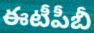
ఈటీపీబీ